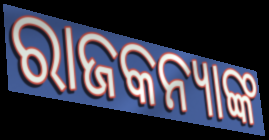
ରାଜକନ୍ୟାଙ୍କ